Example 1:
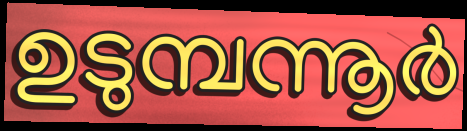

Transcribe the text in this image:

ഉടുമ്പന്നൂർ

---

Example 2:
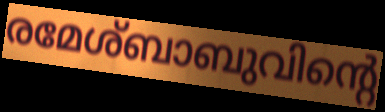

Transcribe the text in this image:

രമേശ്ബാബുവിന്റെ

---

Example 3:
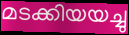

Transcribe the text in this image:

മടക്കിയയച്ചു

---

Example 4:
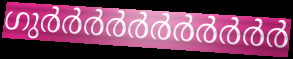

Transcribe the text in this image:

ഗുർർർർർർർർർർർ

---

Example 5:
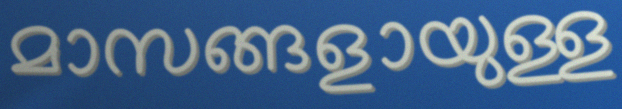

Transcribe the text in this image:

മാസങ്ങളായുള്ള